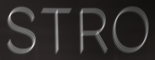
STRO